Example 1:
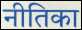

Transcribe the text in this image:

नीतिका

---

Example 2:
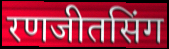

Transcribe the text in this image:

रणजीतसिंग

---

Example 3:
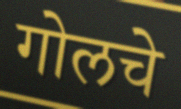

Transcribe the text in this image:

गोलचे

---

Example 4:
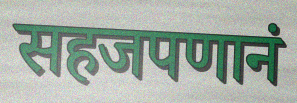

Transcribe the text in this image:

सहजपणानं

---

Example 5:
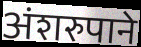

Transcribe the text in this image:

अंशरुपाने